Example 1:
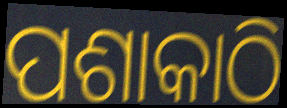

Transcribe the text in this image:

ପଶାକାଠି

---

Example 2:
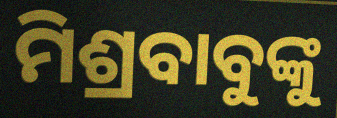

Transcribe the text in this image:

ମିଶ୍ରବାବୁଙ୍କୁ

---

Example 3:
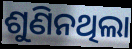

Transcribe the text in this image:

ଶୁଣିନଥିଲା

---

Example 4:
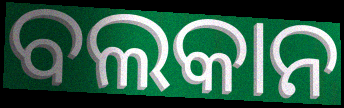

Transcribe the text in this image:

ବଲକାନ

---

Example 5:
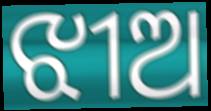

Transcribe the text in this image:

ଝୀଅ